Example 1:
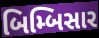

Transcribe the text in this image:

બિમ્બિસાર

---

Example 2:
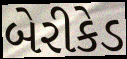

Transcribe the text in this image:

બેરીકેડ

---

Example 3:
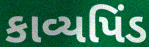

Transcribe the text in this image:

કાવ્યપિંડ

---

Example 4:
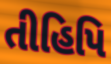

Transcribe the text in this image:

તીહિપિ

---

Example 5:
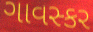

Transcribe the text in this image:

ગાવસ્કર